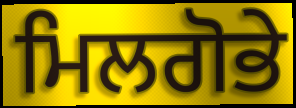
ਮਿਲਗੋਭੇ